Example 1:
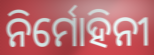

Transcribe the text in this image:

ନିର୍ମୋହିନୀ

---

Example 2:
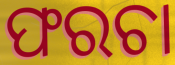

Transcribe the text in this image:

ଫରଚା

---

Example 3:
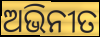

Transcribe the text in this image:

ଅଭିନୀତ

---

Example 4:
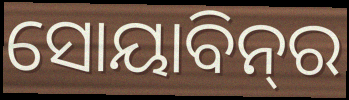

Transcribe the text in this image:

ସୋୟାବିନ୍‌ର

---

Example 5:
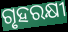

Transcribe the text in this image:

ଗୃହରକ୍ଷୀ